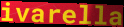
ivarella